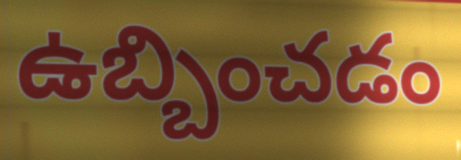
ఉబ్బించడం